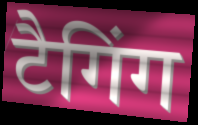
टैगिंग